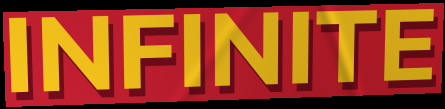
INFINITE